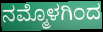
ನಮ್ಮೊಳಗಿಂದ